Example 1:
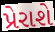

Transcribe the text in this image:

પ્રેરાશે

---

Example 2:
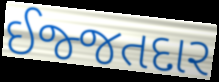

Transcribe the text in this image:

ઈજ્જતદાર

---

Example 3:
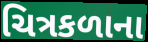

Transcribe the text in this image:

ચિત્રકળાના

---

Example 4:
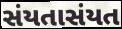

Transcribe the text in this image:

સંયતાસંયત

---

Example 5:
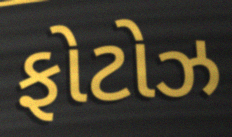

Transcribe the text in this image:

ફોટોઝ